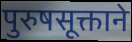
पुरुषसूक्ताने